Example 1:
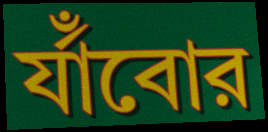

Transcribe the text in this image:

র্যাঁবোর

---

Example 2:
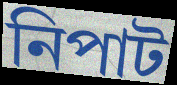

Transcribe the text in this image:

নিপাট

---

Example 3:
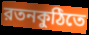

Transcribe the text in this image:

রতনকুঠিতে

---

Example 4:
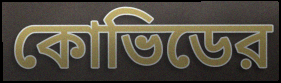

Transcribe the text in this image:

কোভিডের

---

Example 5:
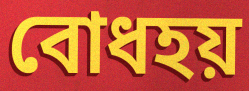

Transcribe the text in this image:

বোধহয়